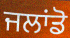
ਜਲਾਂਡੋ